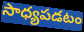
సాధ్యపడటం